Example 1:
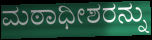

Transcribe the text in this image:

ಮಠಾಧೀಶರನ್ನು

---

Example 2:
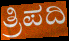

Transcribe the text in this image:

ತ್ರಿಪದಿ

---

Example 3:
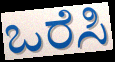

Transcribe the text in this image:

ಒರೆಸಿ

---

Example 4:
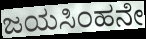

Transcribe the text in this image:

ಜಯಸಿಂಹನೇ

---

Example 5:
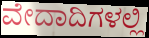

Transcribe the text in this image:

ವೇದಾದಿಗಳಲ್ಲಿ